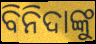
ବିନିଦାଙ୍କୁ